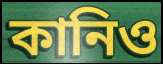
কানিও